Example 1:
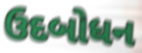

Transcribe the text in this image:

ઉદબોધન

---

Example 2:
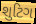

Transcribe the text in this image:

શુટિગ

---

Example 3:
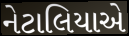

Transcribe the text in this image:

નેટાલિયાએ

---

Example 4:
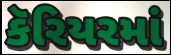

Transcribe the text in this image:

કૅરિયરમાં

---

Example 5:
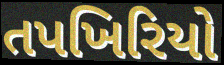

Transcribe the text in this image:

તપખિરિયો